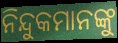
ନିନ୍ଦୁକମାନଙ୍କୁ